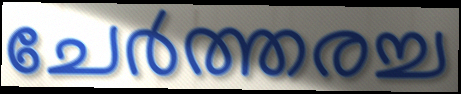
ചേർത്തരച്ച